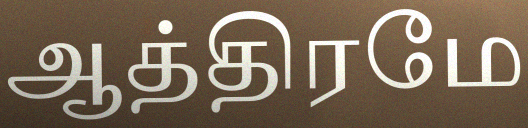
ஆத்திரமே